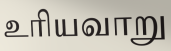
உரியவாறு